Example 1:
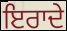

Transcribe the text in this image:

ਇਰਾਦੇ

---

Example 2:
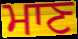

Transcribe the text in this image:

ਮਾਣ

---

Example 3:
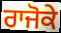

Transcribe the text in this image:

ਰਾਜੋਕੇ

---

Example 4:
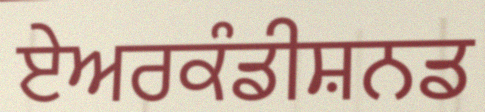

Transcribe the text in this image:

ਏਅਰਕੰਡੀਸ਼ਨਡ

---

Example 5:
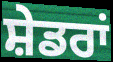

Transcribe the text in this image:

ਸ਼ੇਡਰਾਂ